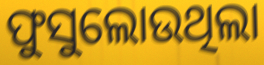
ଫୁସୁଲୋଉଥିଲା